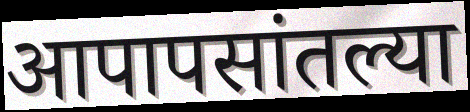
आपापसांतल्या